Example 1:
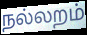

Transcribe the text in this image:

நல்லறம்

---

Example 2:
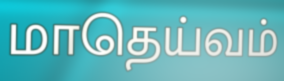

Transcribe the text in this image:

மாதெய்வம்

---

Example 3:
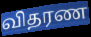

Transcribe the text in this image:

விதரண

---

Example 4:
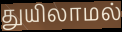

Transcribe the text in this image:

துயிலாமல்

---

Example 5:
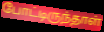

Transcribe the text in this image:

போட்டிருந்தாள்